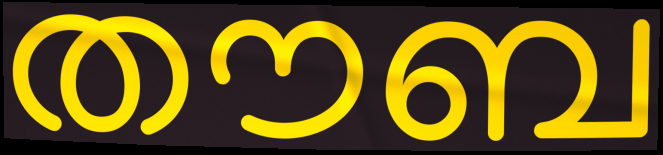
തൗബ